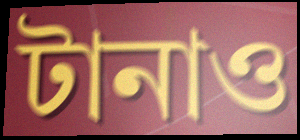
টানাও